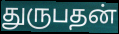
துருபதன்